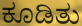
ಕೂಡಿತು